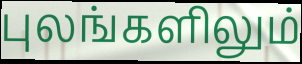
புலங்களிலும்